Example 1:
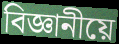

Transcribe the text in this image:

বিজ্ঞানীয়ে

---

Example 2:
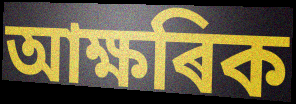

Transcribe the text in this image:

আক্ষৰিক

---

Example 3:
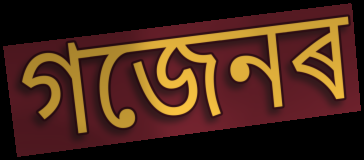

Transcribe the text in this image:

গজেনৰ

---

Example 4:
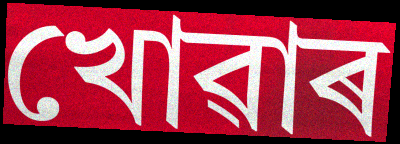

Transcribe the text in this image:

খোৱাৰ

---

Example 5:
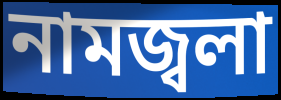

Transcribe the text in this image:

নামজ্বলা